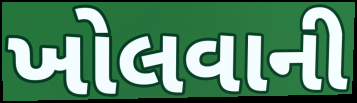
ખોલવાની